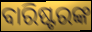
ବାରିଷ୍ଟରଙ୍କ